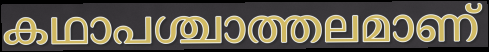
കഥാപശ്ചാത്തലമാണ്